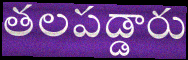
తలపడ్డారు